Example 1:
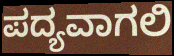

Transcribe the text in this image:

ಪದ್ಯವಾಗಲಿ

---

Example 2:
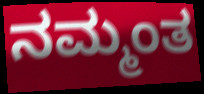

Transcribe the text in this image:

ನಮ್ಮಂತ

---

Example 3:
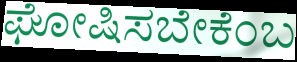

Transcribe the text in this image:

ಘೋಷಿಸಬೇಕೆಂಬ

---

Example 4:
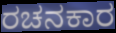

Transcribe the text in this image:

ರಚನಕಾರ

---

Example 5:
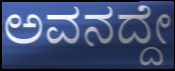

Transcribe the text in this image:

ಅವನದ್ದೇ